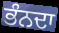
ਭੰਨਦਾ